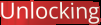
Unlocking